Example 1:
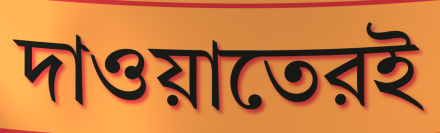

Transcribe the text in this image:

দাওয়াতেরই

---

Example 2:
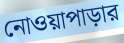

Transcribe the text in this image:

নোওয়াপাড়ার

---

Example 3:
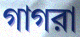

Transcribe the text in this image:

গাগরা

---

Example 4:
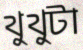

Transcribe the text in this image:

থুথুটা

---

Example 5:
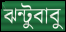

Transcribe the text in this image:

ঝন্টুবাবু